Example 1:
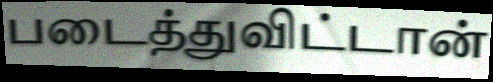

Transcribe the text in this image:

படைத்துவிட்டான்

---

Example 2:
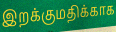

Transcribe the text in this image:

இறக்குமதிக்காக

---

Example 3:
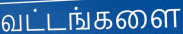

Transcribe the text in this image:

வட்டங்களை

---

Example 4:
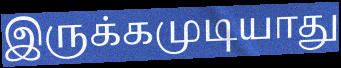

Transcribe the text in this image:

இருக்கமுடியாது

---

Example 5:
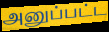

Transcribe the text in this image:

அனுப்பட்ட